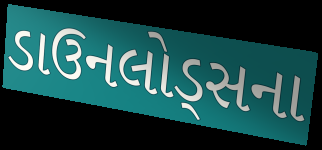
ડાઉનલોડ્સના